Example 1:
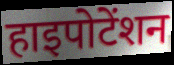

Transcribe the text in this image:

हाइपोटेंशन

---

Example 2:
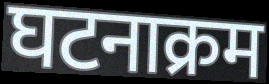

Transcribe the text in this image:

घटनाक्रम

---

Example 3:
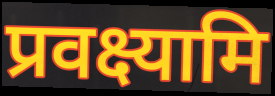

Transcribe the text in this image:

प्रवक्ष्यामि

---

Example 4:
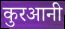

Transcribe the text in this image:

कुरआनी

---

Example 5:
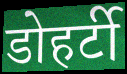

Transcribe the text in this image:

डोहर्टी